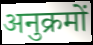
अनुक्रमों